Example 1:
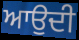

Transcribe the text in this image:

ਆਉਦੀ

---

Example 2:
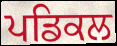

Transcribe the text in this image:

ਪਡਿਕਲ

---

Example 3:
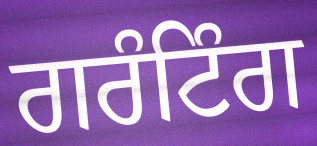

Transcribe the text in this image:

ਗਰੰਟਿੰਗ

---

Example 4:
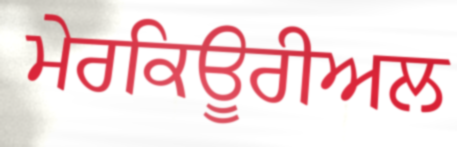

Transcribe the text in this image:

ਮੇਰਕਿਊਰੀਅਲ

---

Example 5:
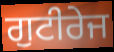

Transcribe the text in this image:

ਗੁਟੀਰੇਜ